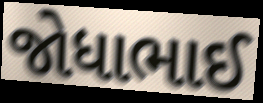
જોધાભાઈ